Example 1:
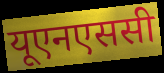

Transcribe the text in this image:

यूएनएससी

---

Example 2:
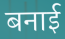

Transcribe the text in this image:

बनाई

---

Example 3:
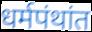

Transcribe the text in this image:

धर्मपंथांत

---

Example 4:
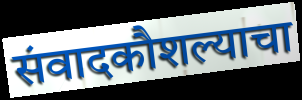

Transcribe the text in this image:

संवादकौशल्याचा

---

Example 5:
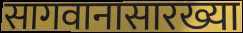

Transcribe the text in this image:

सागवानासारख्या